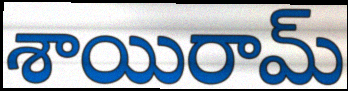
శాయిరామ్